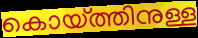
കൊയ്ത്തിനുള്ള